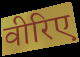
वीरिए